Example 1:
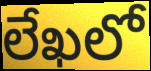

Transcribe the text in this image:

లేఖలో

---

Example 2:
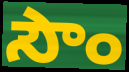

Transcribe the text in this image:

సౌం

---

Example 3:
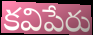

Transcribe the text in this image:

కవిపేరు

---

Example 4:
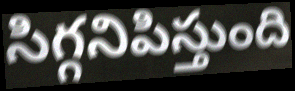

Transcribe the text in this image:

సిగ్గనిపిస్తుంది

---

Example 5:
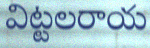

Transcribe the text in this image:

విట్టలరాయ